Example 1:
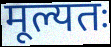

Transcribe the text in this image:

मूल्यतः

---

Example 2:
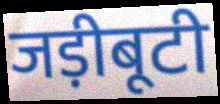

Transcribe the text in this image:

जड़ीबूटी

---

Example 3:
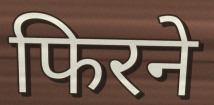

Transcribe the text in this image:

फिरने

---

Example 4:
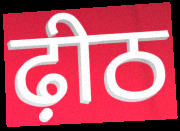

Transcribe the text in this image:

ढ़ीठ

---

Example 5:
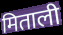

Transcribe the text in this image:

मिताली